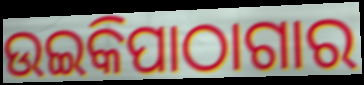
ଉଇକିପାଠାଗାର